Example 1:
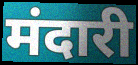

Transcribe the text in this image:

मंदारी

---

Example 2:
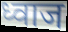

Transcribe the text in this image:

ध्वाज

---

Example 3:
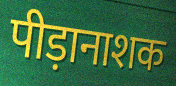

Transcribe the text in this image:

पीड़ानाशक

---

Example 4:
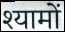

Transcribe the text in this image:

श्यामों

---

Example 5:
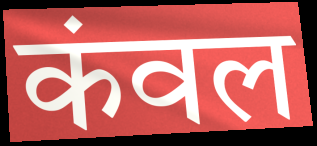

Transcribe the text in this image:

कंवल